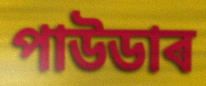
পাউডাৰ